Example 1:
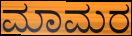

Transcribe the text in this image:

ಮಾಮರ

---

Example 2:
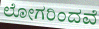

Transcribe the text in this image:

ಲೋಗರಿಂದವೆ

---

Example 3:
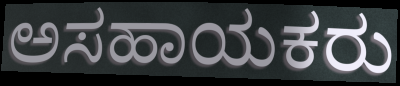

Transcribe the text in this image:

ಅಸಹಾಯಕರು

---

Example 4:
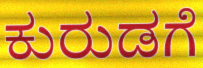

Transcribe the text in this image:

ಕುರುಡಗೆ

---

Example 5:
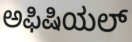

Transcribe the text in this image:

ಅಫಿಷಿಯಲ್